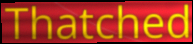
Thatched